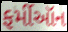
ફર્મીઑન